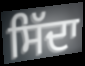
ਸਿੱਦਾ